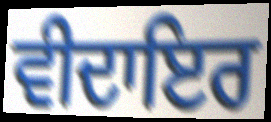
ਵੀਦਾਇਰ